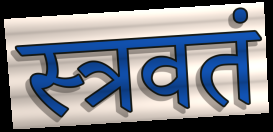
स्त्रवतं